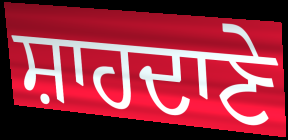
ਸ਼ਾਹਦਾਣੇ